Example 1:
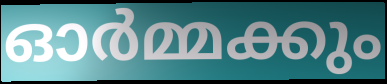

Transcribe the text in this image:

ഓർമ്മക്കും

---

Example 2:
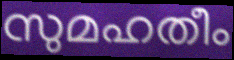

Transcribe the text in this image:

സുമഹതീം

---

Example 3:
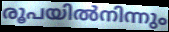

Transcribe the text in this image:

രൂപയിൽനിന്നും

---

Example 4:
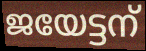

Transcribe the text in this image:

ജയേട്ടന്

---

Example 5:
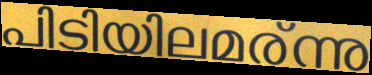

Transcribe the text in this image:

പിടിയിലമര്ന്നു